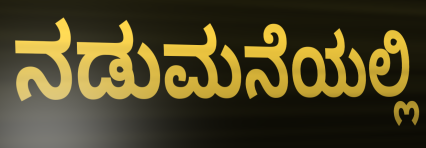
ನಡುಮನೆಯಲ್ಲಿ